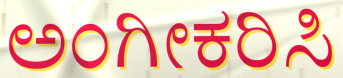
ಅಂಗೀಕರಿಸಿ